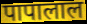
पापालाल